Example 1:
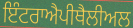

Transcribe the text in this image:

ਇੰਟਰਾਐਪੀਥੈਲੀਅਲ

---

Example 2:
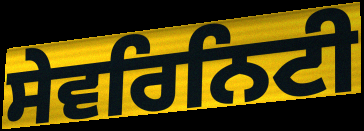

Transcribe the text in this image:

ਸੇਵਰਿਨਿਟੀ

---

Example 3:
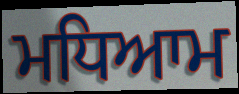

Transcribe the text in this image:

ਮਧਿਆਮ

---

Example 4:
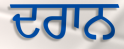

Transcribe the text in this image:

ਦਰਾਨ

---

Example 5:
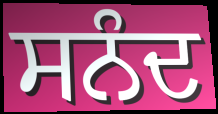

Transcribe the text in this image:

ਸਨੰਦ